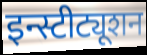
इन्स्टीट्यूशन